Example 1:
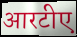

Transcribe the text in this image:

आरटीए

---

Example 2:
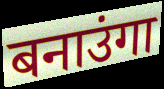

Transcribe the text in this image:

बनाउंगा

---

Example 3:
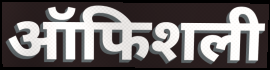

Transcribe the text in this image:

ऑफिशली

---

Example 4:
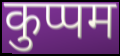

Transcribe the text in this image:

कुप्पम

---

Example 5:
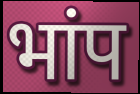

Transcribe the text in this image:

भांप